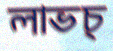
লাভচ্